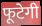
फूटेगी